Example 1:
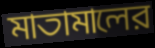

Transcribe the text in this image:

মাতামালের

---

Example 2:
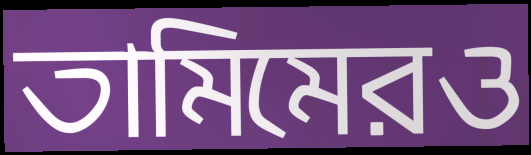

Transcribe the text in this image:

তামিমেরও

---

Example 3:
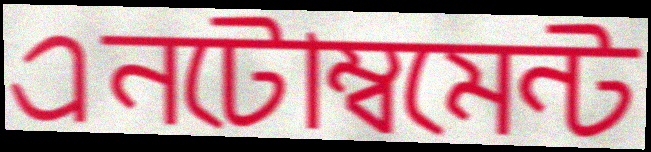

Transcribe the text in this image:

এনটোম্বমেন্ট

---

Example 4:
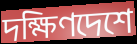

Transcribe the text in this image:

দক্ষিণদেশে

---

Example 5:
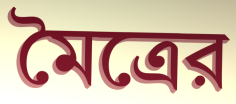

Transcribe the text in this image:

মৈত্রের